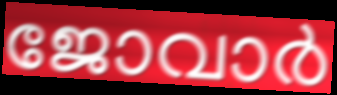
ജോവാർ